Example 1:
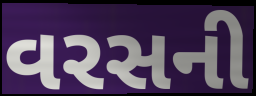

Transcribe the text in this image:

વરસની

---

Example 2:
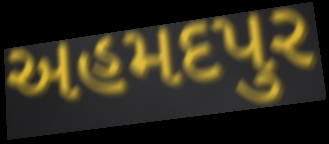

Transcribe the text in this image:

અહમદપુર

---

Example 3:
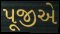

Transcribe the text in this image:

પૂજીએ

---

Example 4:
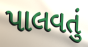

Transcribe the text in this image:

પાલવતું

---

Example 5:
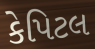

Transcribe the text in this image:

કેપિટલ